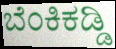
ಬೆಂಕಿಕಡ್ಡಿ